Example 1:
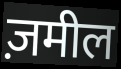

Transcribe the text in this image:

ज़मील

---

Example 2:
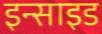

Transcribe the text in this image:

इन्साइड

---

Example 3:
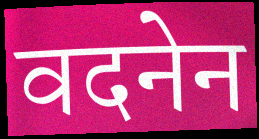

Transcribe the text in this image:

वदनेन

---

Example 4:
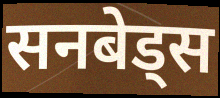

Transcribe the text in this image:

सनबेड्स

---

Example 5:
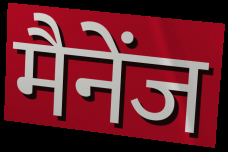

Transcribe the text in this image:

मैनेंज